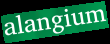
alangium